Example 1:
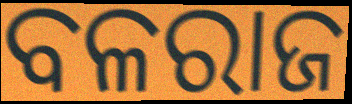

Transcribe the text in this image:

ବଳରାଜ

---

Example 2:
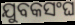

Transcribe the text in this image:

ଯୁବକସଂଘ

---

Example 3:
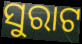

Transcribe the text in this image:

ସୁରାଟ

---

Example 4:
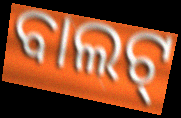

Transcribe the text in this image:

ବାଲଟ୍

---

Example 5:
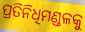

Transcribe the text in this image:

ପ୍ରତିନିଧିମଣ୍ଡଳକୁ